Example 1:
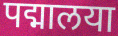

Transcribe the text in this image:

पद्मालया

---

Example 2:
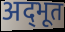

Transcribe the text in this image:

अद्‌भूत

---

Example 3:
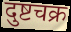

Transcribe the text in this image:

दुष्टचक्र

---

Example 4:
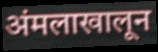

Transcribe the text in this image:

अंमलाखालून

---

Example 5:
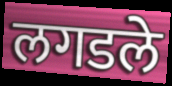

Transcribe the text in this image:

लगडले